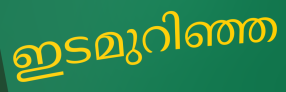
ഇടമുറിഞ്ഞ